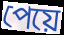
পেয়ে